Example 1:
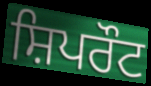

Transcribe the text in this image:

ਸ਼ਿਪਰੌਟ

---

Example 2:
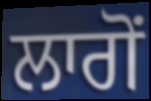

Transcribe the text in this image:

ਲਾਗੋਂ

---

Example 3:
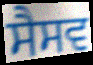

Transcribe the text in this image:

ਸੈਸਵ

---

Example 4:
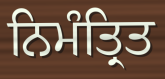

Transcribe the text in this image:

ਨਿਮੰਤ੍ਰਿਤ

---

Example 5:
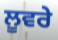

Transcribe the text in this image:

ਲੂਵਰੇ